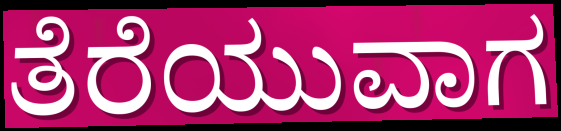
ತೆರೆಯುವಾಗ